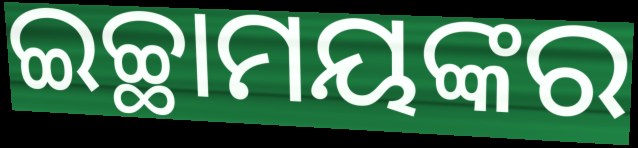
ଇଚ୍ଛାମୟଙ୍କର